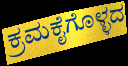
ಕ್ರಮಕೈಗೊಳ್ಳದ